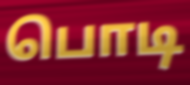
பொடி